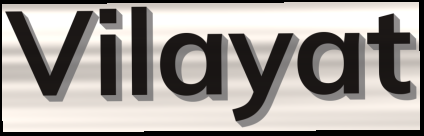
Vilayat